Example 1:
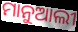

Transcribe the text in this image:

ମାନୁଆଲୀ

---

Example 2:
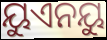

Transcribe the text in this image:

ୟୁଏନୟୁ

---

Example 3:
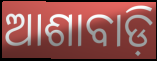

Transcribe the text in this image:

ଆଶାବାଡ଼ି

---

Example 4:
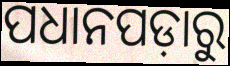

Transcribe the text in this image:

ପଧାନପଡ଼ାରୁ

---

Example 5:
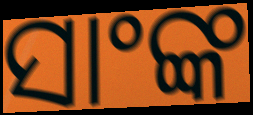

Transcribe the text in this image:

ସାଂଙ୍କ